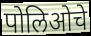
पोलिओचे